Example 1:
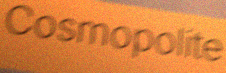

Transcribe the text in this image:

Cosmopolite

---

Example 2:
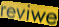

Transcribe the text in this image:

reviwe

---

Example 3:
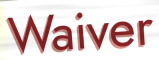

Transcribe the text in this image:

Waiver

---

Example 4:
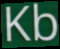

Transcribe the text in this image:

Kb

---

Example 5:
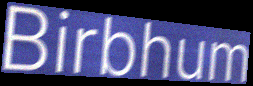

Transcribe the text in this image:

Birbhum